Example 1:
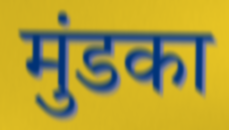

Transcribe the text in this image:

मुंडका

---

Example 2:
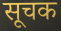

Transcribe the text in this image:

सूचक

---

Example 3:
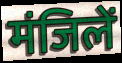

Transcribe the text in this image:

मंजिलें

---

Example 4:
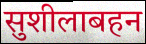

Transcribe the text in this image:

सुशीलाबहन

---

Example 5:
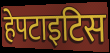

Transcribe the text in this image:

हेपटाइटिस